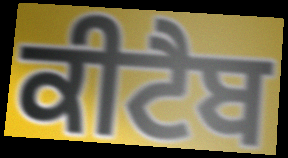
ਕੀਟੈਬ